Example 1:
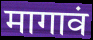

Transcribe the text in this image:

मागावं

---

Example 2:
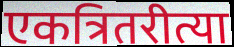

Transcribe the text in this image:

एकत्रितरीत्या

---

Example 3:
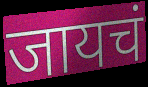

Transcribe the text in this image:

जायचं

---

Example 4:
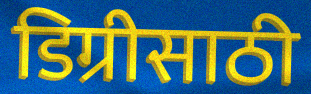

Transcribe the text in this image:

डिग्रीसाठी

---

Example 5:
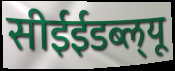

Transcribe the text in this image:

सीईईडब्ल्यू